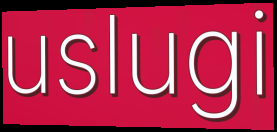
uslugi